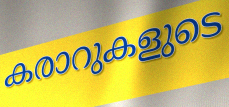
കരാറുകളുടെ